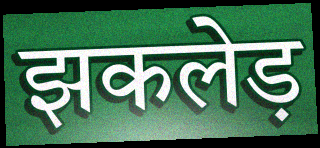
झकलेड़